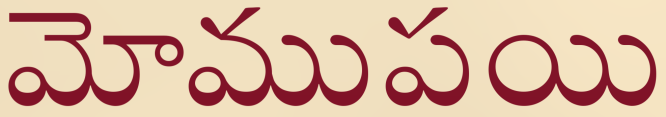
మోముపయి